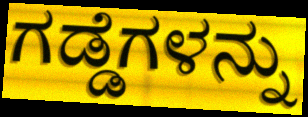
ಗಡ್ಡೆಗಳನ್ನು